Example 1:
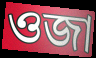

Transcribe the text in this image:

ওজা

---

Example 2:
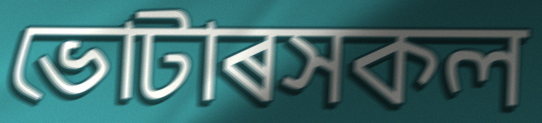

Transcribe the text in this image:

ভোটাৰসকল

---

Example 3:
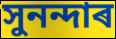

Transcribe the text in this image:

সুনন্দাৰ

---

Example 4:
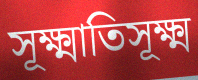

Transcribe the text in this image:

সূক্ষ্মাতিসূক্ষ্ম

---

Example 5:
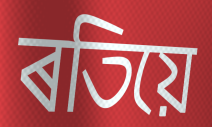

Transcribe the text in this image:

ৰতিয়ে